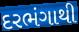
દરભંગાથી